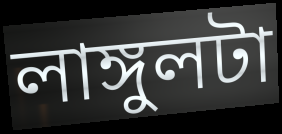
লাঙ্গুলটা